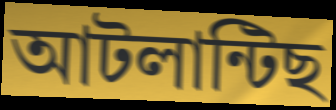
আটলান্টিছ